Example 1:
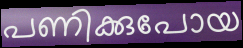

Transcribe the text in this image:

പണിക്കുപോയ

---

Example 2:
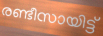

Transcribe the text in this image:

രണ്ടീസായിട്ട്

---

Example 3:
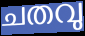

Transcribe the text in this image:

ചതവു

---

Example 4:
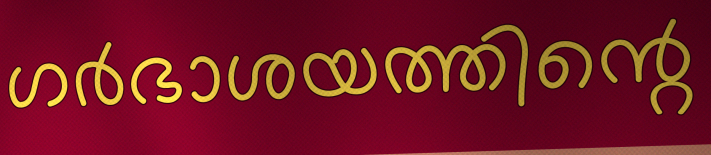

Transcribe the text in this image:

ഗർഭാശയത്തിന്റെ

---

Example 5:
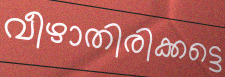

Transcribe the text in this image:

വീഴാതിരിക്കട്ടെ